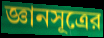
জ্ঞানসূত্রের